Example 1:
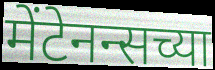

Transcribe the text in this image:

मेंटेनन्सच्या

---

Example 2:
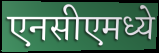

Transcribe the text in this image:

एनसीएमध्ये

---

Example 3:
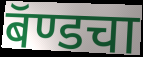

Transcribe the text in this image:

बॅण्डचा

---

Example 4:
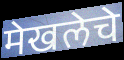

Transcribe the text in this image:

मेखलेचे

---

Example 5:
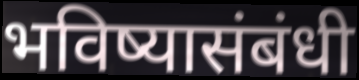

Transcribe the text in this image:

भविष्यासंबंधी